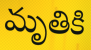
మృతికి